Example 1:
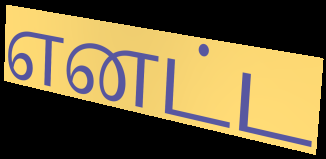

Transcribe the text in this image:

எனட்ட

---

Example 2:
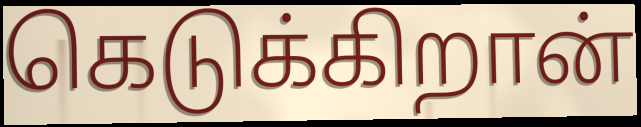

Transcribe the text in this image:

கெடுக்கிறான்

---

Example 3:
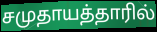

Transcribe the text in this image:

சமுதாயத்தாரில்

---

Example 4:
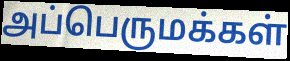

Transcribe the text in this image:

அப்பெருமக்கள்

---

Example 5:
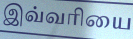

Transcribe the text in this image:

இவ்வரியை